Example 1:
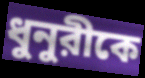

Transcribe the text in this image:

ধুনুরীকে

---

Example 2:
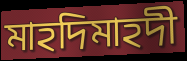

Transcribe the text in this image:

মাহদিমাহদী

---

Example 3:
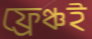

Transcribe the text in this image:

ফ্রেঞ্চই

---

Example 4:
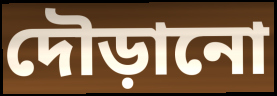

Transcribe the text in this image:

দৌড়ানো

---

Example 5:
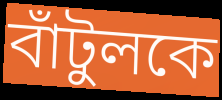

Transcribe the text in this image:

বাঁটুলকে